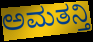
ಅಮತನ್ತಿ